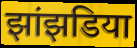
झांझडिया